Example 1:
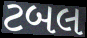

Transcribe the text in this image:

ટબલ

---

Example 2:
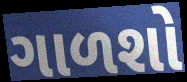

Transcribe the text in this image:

ગાળશો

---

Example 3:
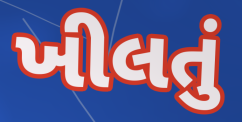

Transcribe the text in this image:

ખીલતું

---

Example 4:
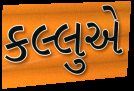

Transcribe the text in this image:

કલ્લુએ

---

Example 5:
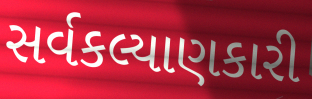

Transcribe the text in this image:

સર્વકલ્યાણકારી